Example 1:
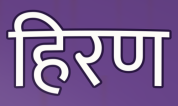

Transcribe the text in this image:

हिरण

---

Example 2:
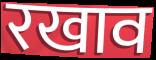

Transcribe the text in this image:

रखाव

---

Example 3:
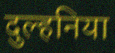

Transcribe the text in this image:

दुल्हनिया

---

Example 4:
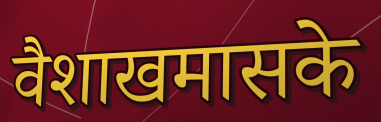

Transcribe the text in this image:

वैशाखमासके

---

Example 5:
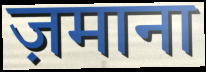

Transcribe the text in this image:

ज़माना